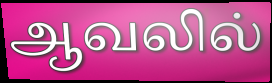
ஆவலில்